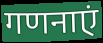
गणनाएं